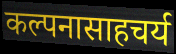
कल्पनासाहचर्य